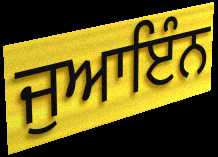
ਜੁਆਇੰਨ